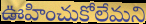
ఊహించుకోలేమని